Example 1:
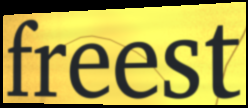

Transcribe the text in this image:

freest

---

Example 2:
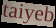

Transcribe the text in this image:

taiyeb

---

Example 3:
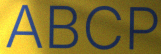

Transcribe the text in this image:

ABCP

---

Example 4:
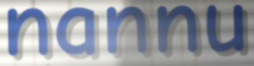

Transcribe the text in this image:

nannu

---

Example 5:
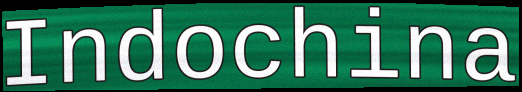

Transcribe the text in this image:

Indochina